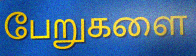
பேறுகளை